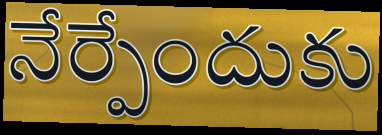
నేర్పేందుకు